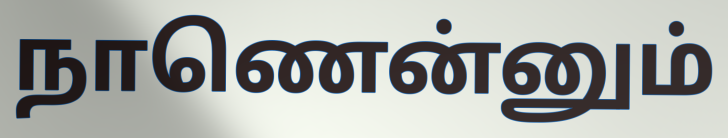
நாணென்னும்